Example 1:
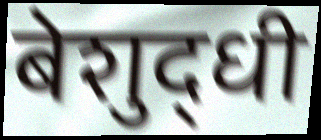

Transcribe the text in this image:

बेशुद्धी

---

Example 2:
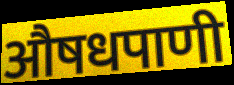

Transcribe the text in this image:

औषधपाणी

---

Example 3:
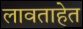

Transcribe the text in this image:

लावताहेत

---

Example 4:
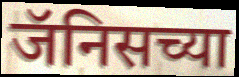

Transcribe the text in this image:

जॅनिसच्या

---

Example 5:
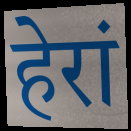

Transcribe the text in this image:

हेरां